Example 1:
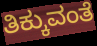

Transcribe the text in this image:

ತಿಕ್ಕುವಂತೆ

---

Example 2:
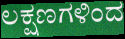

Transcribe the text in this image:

ಲಕ್ಷಣಗಳಿಂದ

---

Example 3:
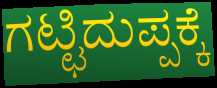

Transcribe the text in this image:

ಗಟ್ಟಿದುಪ್ಪಕ್ಕೆ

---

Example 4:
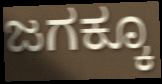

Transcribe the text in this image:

ಜಗಕ್ಕೂ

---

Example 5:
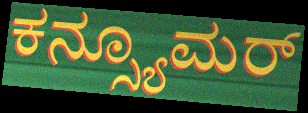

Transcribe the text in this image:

ಕನ್ಸ್ಯೂಮರ್